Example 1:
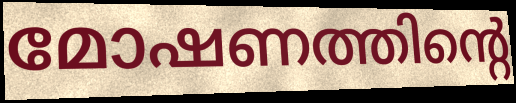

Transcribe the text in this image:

മോഷണത്തിന്റെ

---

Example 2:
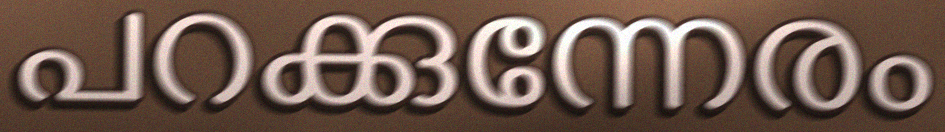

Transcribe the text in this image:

പറക്കുന്നേരം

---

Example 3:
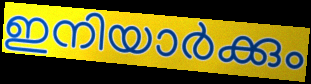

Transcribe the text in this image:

ഇനിയാർക്കും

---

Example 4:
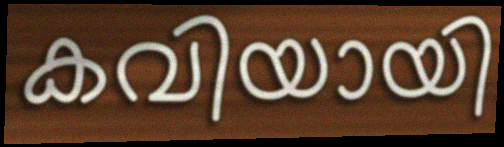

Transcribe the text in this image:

കവിയായി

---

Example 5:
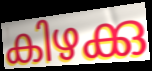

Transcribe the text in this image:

കിഴക്കു